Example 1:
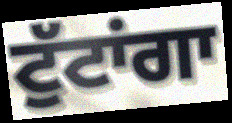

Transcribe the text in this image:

ਟੁੱਟਾਂਗਾ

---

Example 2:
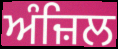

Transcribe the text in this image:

ਅੰਜ਼ਿਲ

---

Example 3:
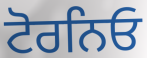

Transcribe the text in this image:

ਟੋਰਨਿਓ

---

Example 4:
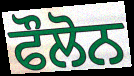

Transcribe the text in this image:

ਫੌਲੋਨ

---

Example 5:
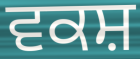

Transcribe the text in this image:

ਵਕਸ਼